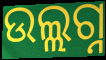
ଉଲ୍ଲଗ୍ନ